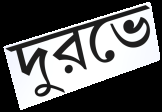
দুরভে